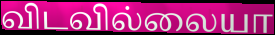
விடவில்லையா